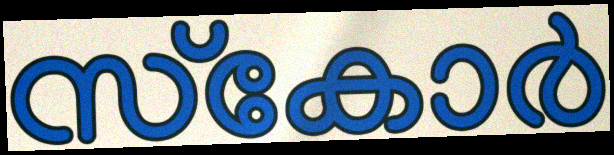
സ്‌കോർ